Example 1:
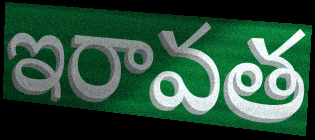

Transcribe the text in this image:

ఇరావత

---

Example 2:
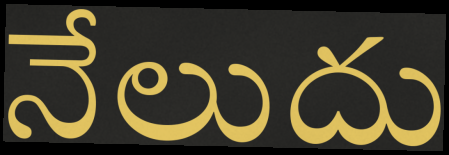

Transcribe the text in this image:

నేలుదు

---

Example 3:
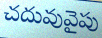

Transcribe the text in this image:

చదువువైపు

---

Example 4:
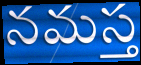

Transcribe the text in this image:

నమస్త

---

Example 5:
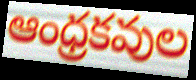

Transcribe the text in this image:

ఆంధ్రకవుల